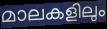
മാലകളിലും